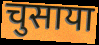
चुसाया